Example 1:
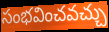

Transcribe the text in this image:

సంభవించవచ్చు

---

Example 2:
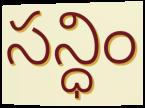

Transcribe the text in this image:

సన్ధిం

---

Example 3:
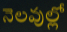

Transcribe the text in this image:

నెలవుల్లో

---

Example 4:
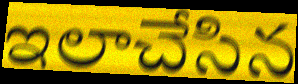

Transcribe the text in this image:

ఇలాచేసిన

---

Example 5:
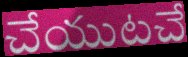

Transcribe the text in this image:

చేయుటచే